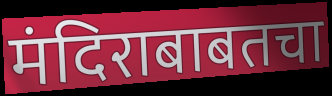
मंदिराबाबतचा